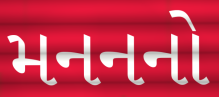
મનનનો